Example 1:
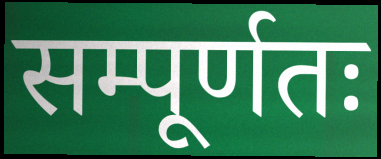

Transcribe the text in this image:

सम्पूर्णतः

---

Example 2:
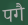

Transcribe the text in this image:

पगै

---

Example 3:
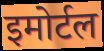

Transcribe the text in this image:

इमोर्टल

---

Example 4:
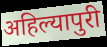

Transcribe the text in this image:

अहिल्यापुरी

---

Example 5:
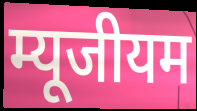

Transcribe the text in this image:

म्यूजीयम